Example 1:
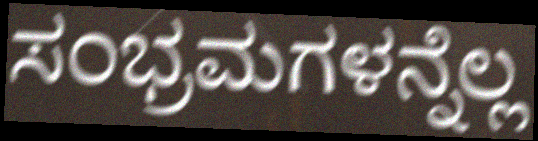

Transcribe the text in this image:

ಸಂಭ್ರಮಗಳನ್ನೆಲ್ಲ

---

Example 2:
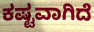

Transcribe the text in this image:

ಕಷ್ಟವಾಗಿದೆ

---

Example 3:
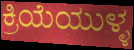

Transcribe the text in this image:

ಕ್ರಿಯೆಯುಳ್ಳ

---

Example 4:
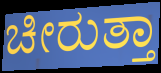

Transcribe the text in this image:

ಚೀರುತ್ತಾ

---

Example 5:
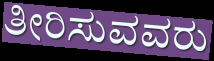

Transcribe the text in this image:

ತೀರಿಸುವವರು